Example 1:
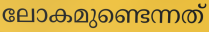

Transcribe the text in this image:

ലോകമുണ്ടെന്നത്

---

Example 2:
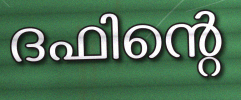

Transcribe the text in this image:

ദഫിന്റെ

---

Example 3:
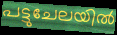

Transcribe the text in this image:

പട്ടുചേലയിൽ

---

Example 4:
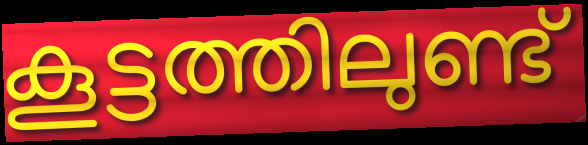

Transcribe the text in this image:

കൂട്ടത്തിലുണ്ട്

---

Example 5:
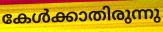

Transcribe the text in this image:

കേൾക്കാതിരുന്നു